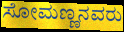
ಸೋಮಣ್ಣನವರು